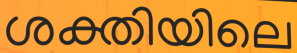
ശക്തിയിലെ